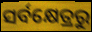
ସର୍ବକ୍ଷେତ୍ରରୁ